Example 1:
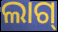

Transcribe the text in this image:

ଲାଗ୍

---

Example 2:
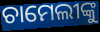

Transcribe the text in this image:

ଚାମେଲୀଙ୍କୁ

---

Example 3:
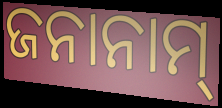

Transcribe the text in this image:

ଜନାନାମ୍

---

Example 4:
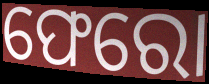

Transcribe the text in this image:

ଫେରୋ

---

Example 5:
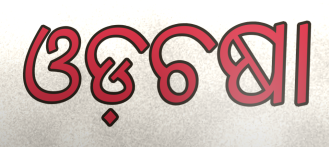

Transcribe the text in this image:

ଓଡ଼ଚଷା